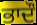
ਭਾਦੌ